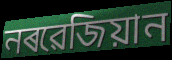
নৰৱেজিয়ান